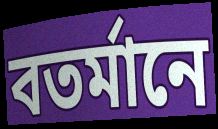
বতর্মানে